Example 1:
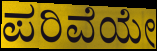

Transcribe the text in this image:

ಪರಿವೆಯೇ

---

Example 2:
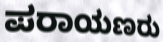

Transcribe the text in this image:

ಪರಾಯಣರು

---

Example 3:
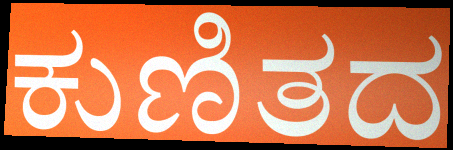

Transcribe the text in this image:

ಕುಣಿತದ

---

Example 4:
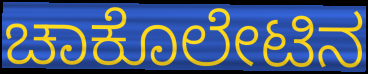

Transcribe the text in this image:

ಚಾಕೊಲೇಟಿನ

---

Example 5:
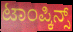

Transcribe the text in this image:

ಟಾಂಪ್ಕಿನ್ಸ್